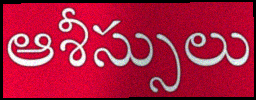
ఆశీస్సులు